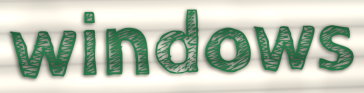
windows